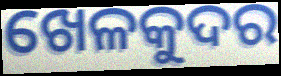
ଖେଳକୁଦର